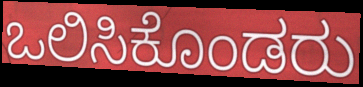
ಒಲಿಸಿಕೊಂಡರು